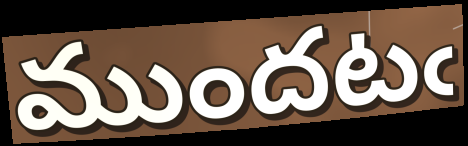
ముందటఁ